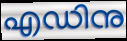
എഡിനു